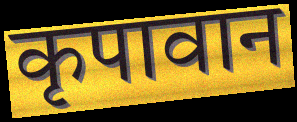
कृपावान